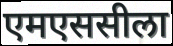
एमएससीला